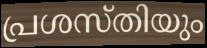
പ്രശസ്തിയും